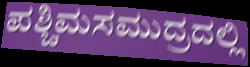
ಪಶ್ಚಿಮಸಮುದ್ರದಲ್ಲಿ